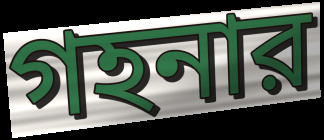
গহনার